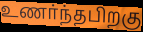
உணர்ந்தபிறகு